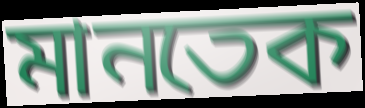
মানতেক